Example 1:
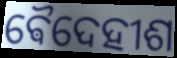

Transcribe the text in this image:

ଵୈଦେହୀଶ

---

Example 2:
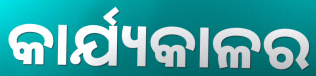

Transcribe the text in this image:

କାର୍ଯ୍ୟକାଳର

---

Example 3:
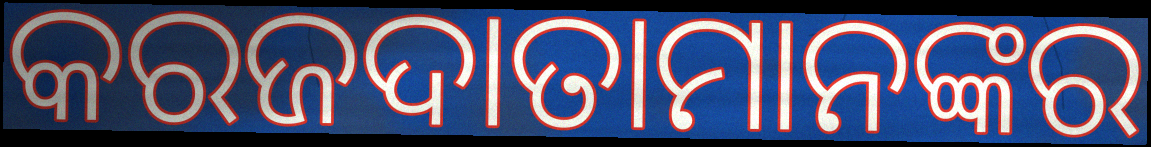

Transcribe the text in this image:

କରଜଦାତାମାନଙ୍କର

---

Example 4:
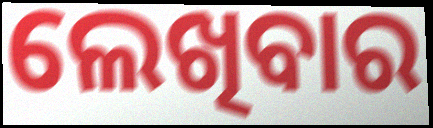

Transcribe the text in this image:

ଲେଖିବାର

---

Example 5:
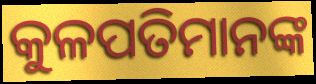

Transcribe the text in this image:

କୁଳପତିମାନଙ୍କ